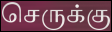
செருக்கு